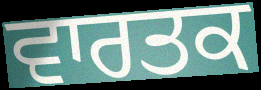
ਵਾਰਤਕ